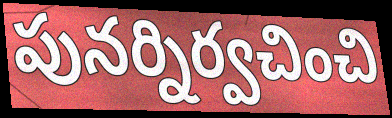
పునర్నిర్వచించి